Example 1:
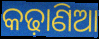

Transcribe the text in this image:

କଢ଼ାଣିଆ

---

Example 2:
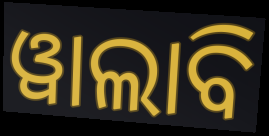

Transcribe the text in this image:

ୱାଲାବି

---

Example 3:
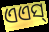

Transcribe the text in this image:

ଏଏସ୍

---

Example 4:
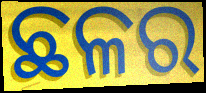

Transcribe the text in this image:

ଛଳର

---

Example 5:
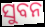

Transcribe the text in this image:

ସୁବନ